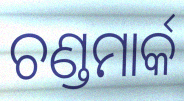
ଚଣ୍ଡମାର୍କ